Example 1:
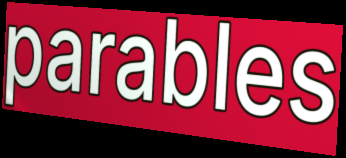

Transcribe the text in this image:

parables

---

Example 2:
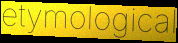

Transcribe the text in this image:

etymological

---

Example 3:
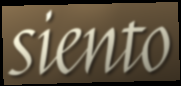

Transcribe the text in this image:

siento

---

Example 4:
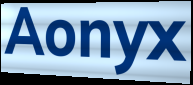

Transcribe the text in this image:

Aonyx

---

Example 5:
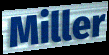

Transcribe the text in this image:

Miller